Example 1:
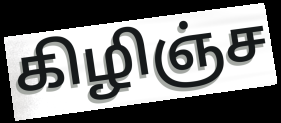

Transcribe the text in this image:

கிழிஞ்ச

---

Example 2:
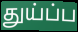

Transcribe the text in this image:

துய்ப்ப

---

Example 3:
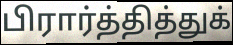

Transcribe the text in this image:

பிரார்த்தித்துக்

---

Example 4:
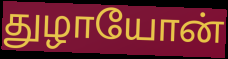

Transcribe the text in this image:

துழாயோன்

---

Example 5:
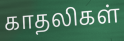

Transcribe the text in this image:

காதலிகள்